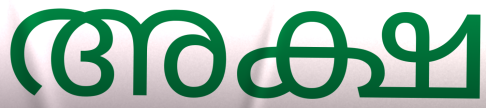
അക്ഷ